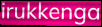
irukkenga